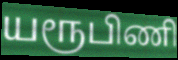
யரூபிணி